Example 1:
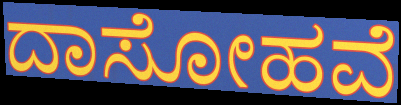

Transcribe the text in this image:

ದಾಸೋಹವೆ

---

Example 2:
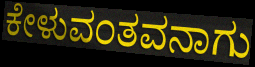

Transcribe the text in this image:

ಕೇಳುವಂತವನಾಗು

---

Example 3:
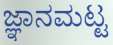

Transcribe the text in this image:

ಜ್ಞಾನಮಟ್ಟ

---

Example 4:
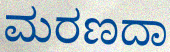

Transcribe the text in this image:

ಮರಣದಾ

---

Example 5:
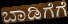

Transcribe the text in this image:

ಬಾಡಿಗೆಗೆ